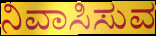
ನಿವಾಸಿಸುವ